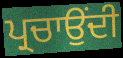
ਪ੍ਰਚਾਉਂਦੀ